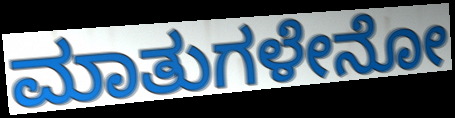
ಮಾತುಗಳೇನೋ